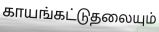
காயங்கட்டுதலையும்